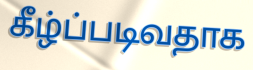
கீழ்ப்படிவதாக